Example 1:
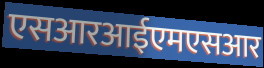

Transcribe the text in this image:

एसआरआईएमएसआर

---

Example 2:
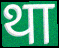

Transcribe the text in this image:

था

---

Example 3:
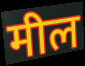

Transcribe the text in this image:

मील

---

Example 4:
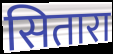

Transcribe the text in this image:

सितारा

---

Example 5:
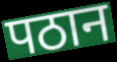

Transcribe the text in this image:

पठान